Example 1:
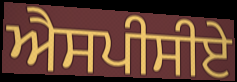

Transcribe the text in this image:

ਐਸਪੀਸੀਏ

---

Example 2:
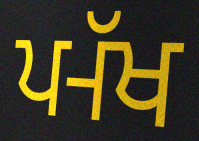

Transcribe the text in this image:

ਪ੍ਮੱਖ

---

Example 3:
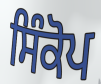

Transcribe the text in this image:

ਸਿੰਕੋਪ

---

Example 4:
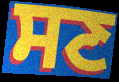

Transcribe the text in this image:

ਸਣ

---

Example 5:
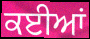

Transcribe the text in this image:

ਕਈਆਂ